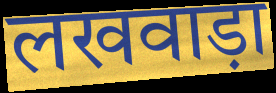
लखवाड़ा